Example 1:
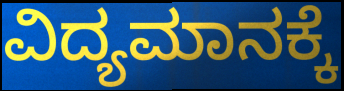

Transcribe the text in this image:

ವಿದ್ಯಮಾನಕ್ಕೆ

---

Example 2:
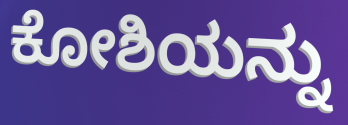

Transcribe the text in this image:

ಕೋಶಿಯನ್ನು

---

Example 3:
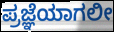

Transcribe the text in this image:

ಪ್ರಜ್ಞೆಯಾಗಲೀ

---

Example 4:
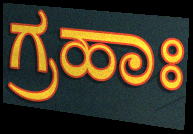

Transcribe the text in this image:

ಗ್ರಹಾಃ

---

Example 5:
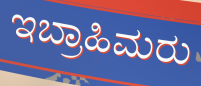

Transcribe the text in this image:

ಇಬ್ರಾಹಿಮರು